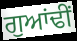
ਗੁਆਂਢੀਂ